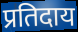
प्रतिदाय